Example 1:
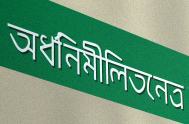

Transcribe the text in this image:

অর্ধনিমীলিতনেত্র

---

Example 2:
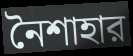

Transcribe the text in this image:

নৈশাহার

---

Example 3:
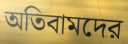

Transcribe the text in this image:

অতিবামদের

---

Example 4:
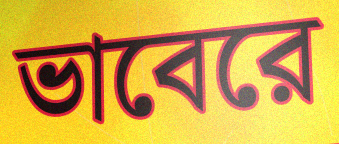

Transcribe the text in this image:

ভাবেরে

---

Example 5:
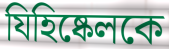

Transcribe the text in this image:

যিহিষ্কেলকে